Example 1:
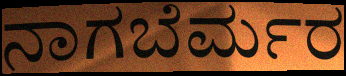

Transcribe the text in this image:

ನಾಗಬೆರ್ಮರ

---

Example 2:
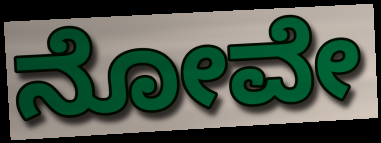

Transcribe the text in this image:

ನೋವೇ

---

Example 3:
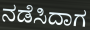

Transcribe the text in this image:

ನಡೆಸಿದಾಗ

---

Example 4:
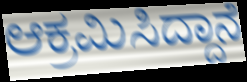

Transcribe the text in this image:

ಆಕ್ರಮಿಸಿದ್ದಾನೆ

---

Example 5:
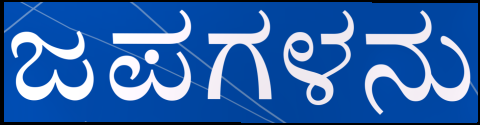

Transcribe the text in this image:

ಜಪಗಳನು